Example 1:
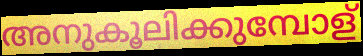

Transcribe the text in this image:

അനുകൂലിക്കുമ്പോള്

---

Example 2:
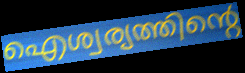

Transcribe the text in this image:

ഐശ്വര്യത്തിന്റെ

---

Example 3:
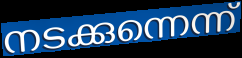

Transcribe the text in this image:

നടക്കുന്നെന്ന്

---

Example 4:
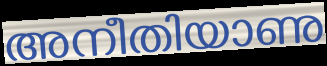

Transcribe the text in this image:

അനീതിയാണു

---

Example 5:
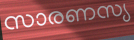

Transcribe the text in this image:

സാരണസ്യ